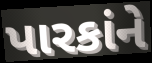
પારકાંને